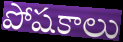
పోషకాలు